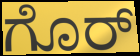
ಗೊರ್